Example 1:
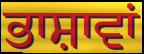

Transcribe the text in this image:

ਭਾਸ਼ਾਵਾਂ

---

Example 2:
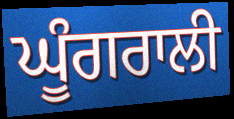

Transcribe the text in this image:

ਘੂੰਗਰਾਲੀ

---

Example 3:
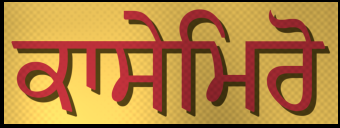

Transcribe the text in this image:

ਕਾਸੇਮਿਰੋ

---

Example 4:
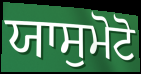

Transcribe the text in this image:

ਯਾਸੁਮੋਟੋ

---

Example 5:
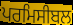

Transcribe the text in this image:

ਪਰਮਿਸੀਬਲ